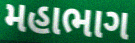
મહાભાગ